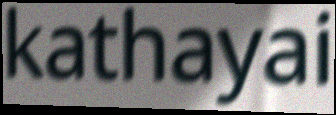
kathayai